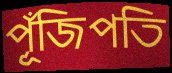
পূঁজিপতি